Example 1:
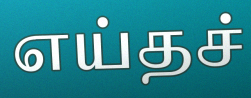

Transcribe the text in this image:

எய்தச்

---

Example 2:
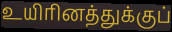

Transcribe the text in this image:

உயிரினத்துக்குப்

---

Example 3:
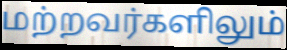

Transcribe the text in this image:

மற்றவர்களிலும்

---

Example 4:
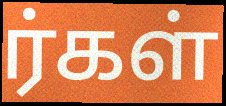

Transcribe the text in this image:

ர்கள்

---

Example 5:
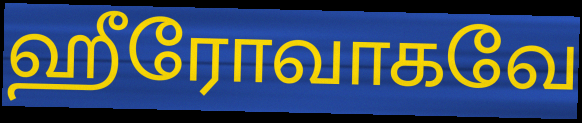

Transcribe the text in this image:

ஹீரோவாகவே